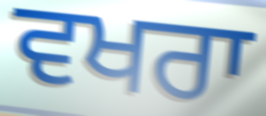
ਵਖਰਾ